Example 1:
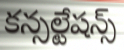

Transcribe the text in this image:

కన్సల్టేషన్స్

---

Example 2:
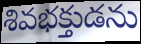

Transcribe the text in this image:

శివభక్తుడను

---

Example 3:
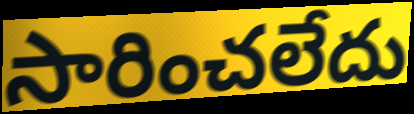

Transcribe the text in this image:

సారించలేదు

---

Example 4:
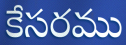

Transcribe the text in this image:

కేసరము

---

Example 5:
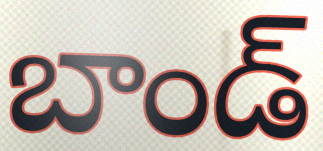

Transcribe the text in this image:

బాండ్